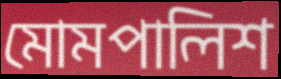
মোমপালিশ